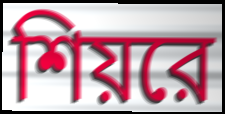
শিয়রে